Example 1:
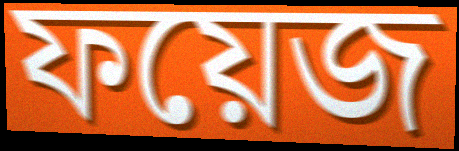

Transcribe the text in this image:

ফয়েজ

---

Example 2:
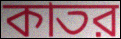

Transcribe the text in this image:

কাতর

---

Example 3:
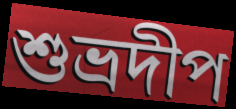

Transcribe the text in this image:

শুভ্রদীপ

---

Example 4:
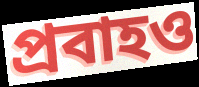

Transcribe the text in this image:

প্রবাহও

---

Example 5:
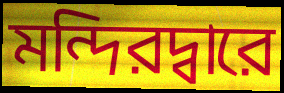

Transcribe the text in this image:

মন্দিরদ্বারে